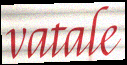
vatale